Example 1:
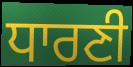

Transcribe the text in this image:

ਧਾਰਣੀ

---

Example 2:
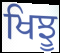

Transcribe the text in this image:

ਖਿਝੂ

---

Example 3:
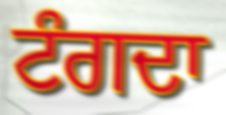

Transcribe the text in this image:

ਟੰਗਦਾ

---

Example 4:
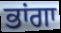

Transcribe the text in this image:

ਭਾਂਗਾ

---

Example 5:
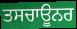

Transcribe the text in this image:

ਤਸਚਾਊਨਰ